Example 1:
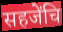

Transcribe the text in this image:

सहजेंचि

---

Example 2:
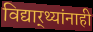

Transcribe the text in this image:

विद्यार्थ्यांनाही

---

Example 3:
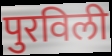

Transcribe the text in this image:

पुरविली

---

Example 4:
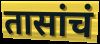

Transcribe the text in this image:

तासांचं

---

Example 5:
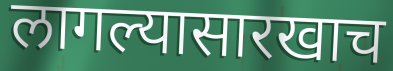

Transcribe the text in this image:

लागल्यासारखाच